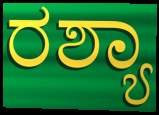
ರಶ್ಯಾ